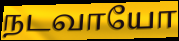
நடவாயோ